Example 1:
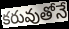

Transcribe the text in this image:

కరువుతోనే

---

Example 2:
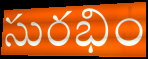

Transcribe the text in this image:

సురభిం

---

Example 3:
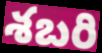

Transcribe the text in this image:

శబరి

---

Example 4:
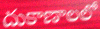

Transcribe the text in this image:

దుకాణాలలో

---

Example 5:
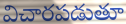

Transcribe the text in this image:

విచారపడుతూ